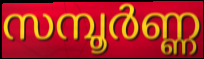
സമ്പൂർണ്ണ